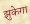
झुकेगा